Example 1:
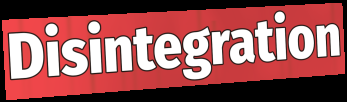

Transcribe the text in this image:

Disintegration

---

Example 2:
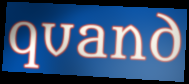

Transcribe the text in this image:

quand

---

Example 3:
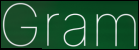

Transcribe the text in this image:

Gram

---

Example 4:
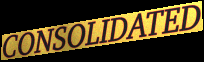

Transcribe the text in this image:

CONSOLIDATED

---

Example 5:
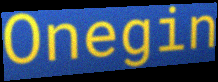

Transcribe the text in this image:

Onegin